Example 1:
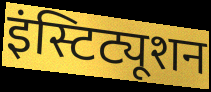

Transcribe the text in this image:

इंस्टिट्यूशन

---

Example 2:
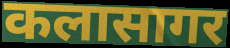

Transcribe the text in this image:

कलासागर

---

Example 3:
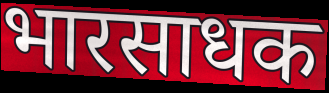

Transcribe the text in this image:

भारसाधक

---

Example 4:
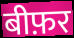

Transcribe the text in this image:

बीफ़र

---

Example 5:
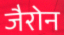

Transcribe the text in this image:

जैरोन